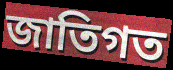
জাতিগত